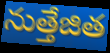
నుత్తేజిత